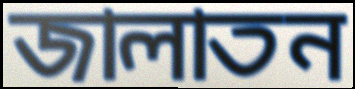
জালাতন